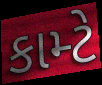
કામ્ટે